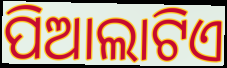
ପିଆଲାଟିଏ